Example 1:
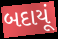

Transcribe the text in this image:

બદાયૂં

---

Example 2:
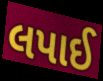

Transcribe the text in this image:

લપાઈ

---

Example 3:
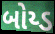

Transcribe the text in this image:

બોય્ડ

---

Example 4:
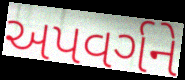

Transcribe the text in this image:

અપવર્ગને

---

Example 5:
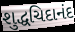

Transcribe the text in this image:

શુદ્ધચિદાનંદ